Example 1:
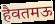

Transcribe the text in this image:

हैवतमऊ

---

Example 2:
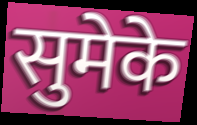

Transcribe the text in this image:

सुमेके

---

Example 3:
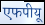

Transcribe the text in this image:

एफपीयू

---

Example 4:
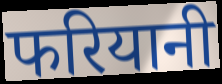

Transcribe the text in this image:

फरियानी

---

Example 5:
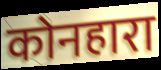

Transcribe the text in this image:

कोनहारा